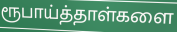
ரூபாய்த்தாள்களை